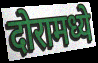
दोरामध्ये